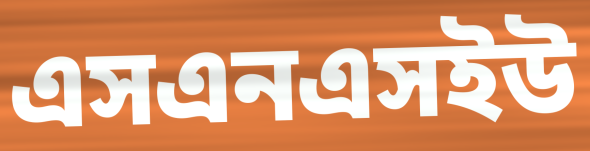
এসএনএসইউ